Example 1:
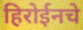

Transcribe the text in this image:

हिरोईनचे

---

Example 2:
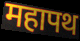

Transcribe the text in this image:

महापथ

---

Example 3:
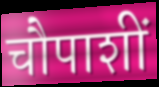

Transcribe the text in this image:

चौपाशीं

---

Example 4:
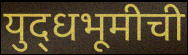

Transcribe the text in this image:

युद्धभूमीची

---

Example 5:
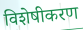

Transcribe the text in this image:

विशेषीकरण